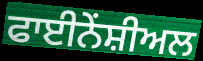
ਫਾਈਨੇਂਸ਼ੀਅਲ